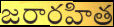
జరారహిత